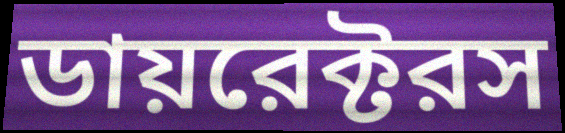
ডায়রেক্টরস